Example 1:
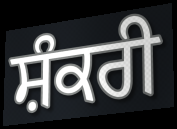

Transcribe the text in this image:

ਸ਼ੰਕਰੀ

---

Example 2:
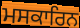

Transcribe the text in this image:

ਮਸਕਾਰਿਨ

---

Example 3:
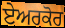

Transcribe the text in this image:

ਏਅਰਕੋਰ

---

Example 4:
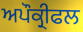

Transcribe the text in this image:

ਅਪੌਕ੍ਰੀਫਲ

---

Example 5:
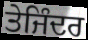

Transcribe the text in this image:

ਤੇਜਿੰਦਰ